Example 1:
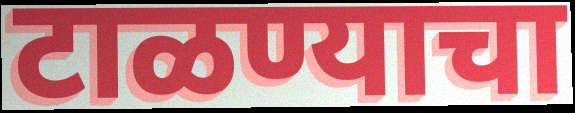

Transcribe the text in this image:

टाळण्याचा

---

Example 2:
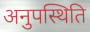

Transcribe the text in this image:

अनुपस्थिति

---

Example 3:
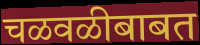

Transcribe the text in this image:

चळवळीबाबत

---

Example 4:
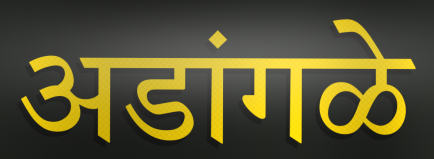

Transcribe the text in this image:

अडांगळे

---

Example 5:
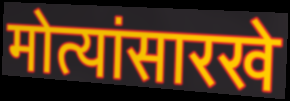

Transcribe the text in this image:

मोत्यांसारखे